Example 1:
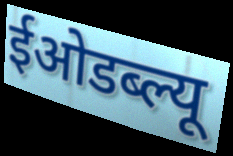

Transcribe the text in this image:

ईओडब्ल्यू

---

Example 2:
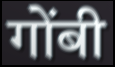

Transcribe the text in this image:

गोंबी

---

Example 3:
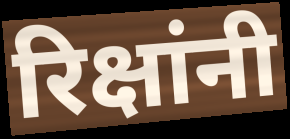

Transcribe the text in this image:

रिक्षांनी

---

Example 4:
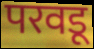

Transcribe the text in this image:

परवडू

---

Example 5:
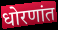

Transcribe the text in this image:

धोरणांत